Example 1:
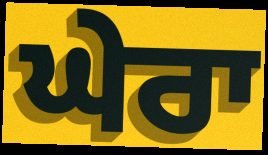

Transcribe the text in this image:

ਘੇਰਾ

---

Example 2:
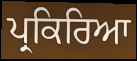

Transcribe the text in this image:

ਪ੍ਰਕਿਰਿਆ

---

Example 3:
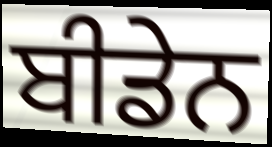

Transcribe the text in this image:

ਬੀਡੇਨ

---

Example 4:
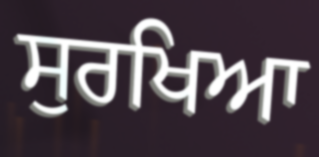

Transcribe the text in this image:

ਸੁਰਖਿਆ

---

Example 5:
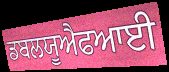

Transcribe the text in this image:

ਡਬਲਯੂਐਫਆਈ